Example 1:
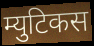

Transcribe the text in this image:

म्युटिकस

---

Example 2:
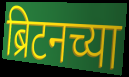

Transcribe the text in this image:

ब्रिटनच्या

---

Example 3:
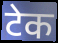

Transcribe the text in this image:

टेक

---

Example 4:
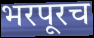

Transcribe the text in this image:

भरपूरच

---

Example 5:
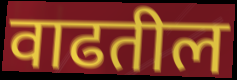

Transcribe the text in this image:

वाढतील